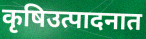
कृषिउत्पादनात